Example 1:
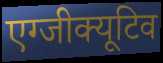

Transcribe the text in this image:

एग्जीक्यूटिव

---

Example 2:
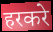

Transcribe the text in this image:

हरकरे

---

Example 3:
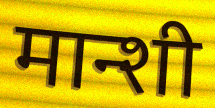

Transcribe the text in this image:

मान्शी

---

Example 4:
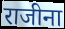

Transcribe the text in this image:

राजीना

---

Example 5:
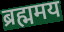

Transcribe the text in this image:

ब्रह्ममय